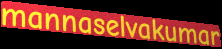
mannaselvakumar